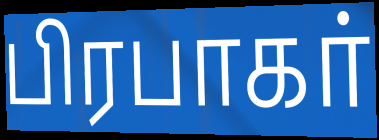
பிரபாகர்